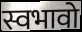
स्वभावो